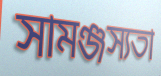
সামঞ্জস্যতা